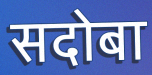
सदोबा